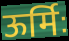
ऊर्मिः